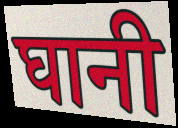
घानी